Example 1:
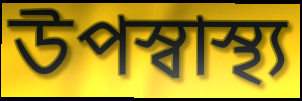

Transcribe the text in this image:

উপস্বাস্থ্য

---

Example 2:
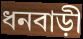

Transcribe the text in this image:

ধনবাড়ী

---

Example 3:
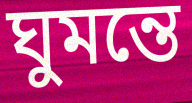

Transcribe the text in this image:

ঘুমন্তে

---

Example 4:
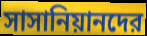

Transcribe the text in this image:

সাসানিয়ানদের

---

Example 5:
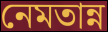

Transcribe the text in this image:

নেমতান্ন